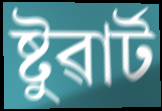
ষ্টুৱাৰ্ট